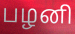
பழனி